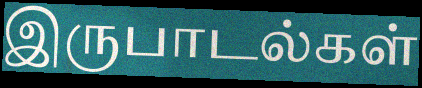
இருபாடல்கள்